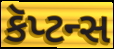
કૅપ્ટન્સ